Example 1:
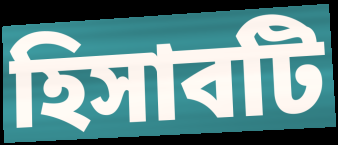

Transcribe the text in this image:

হিসাবটি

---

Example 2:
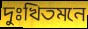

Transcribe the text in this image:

দুঃখিতমনে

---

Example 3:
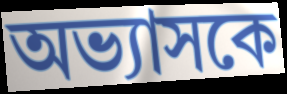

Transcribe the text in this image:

অভ্যাসকে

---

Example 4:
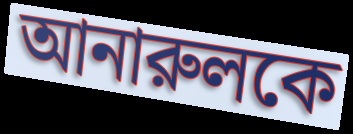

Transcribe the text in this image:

আনারুলকে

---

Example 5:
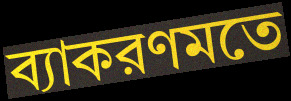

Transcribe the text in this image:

ব্যাকরণমতে